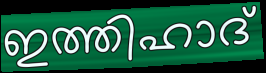
ഇത്തിഹാദ്